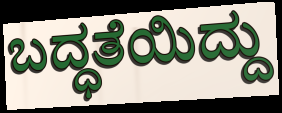
ಬದ್ಧತೆಯಿದ್ದು